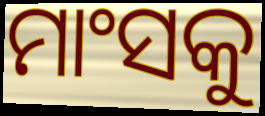
ମାଂସକୁ